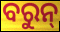
ବରୁନ୍